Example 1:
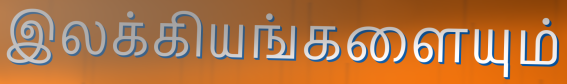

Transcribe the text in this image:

இலக்கியங்களையும்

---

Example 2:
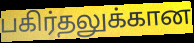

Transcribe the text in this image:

பகிர்தலுக்கான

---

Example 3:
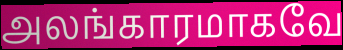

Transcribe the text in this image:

அலங்காரமாகவே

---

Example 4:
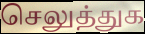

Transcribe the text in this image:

செலுத்துக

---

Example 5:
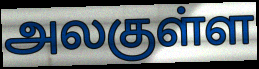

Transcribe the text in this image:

அலகுள்ள